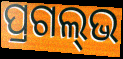
ପ୍ରଗଲ୍‌ଭ